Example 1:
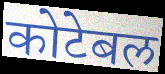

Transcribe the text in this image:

कोटेबल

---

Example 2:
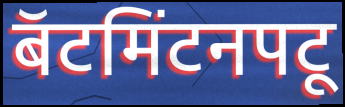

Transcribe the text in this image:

बॅटमिंटनपटू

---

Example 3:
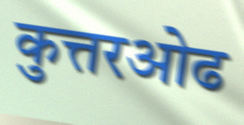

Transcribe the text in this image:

कुत्तरओढ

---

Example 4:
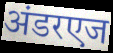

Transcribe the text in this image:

अंडरएज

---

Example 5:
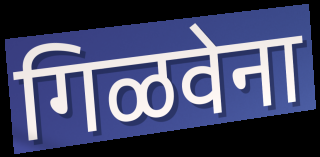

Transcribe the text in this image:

गिळवेना